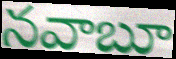
నవాబూ